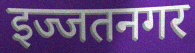
इज्जतनगर